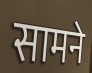
सामने